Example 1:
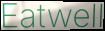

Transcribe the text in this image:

Eatwell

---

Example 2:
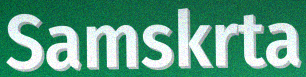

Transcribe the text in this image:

Samskrta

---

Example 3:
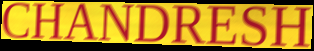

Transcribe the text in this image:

CHANDRESH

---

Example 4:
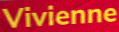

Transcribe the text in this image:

Vivienne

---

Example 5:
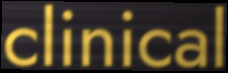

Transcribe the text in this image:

clinical